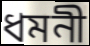
ধমনী